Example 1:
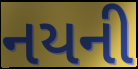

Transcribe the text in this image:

નયની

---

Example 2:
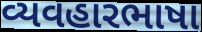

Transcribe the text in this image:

વ્યવહારભાષા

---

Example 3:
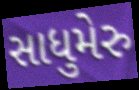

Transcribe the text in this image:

સાધુમેરુ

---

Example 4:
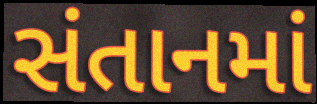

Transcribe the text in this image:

સંતાનમાં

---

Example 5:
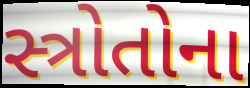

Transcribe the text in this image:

સ્ત્રોતોના